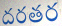
దరతర